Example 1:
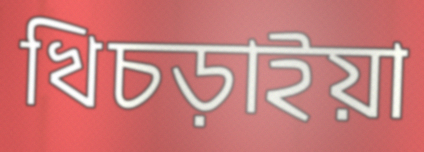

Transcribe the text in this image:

খিচড়াইয়া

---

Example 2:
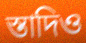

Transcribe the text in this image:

স্তাদিও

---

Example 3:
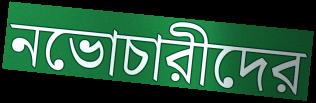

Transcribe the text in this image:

নভোচারীদের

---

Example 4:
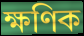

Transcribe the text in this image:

ক্ষণিক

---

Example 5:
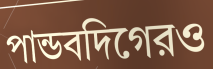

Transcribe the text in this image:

পান্ডবদিগেরও